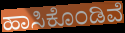
ಹಾಸಿಕೊಂಡಿವೆ